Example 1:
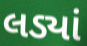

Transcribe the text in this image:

લડ્યાં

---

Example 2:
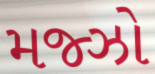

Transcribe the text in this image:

મજ્ઝો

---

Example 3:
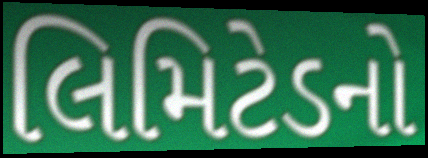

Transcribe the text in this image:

લિમિટેડનો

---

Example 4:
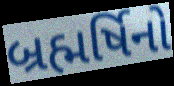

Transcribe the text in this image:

બ્રહ્મર્ષિનો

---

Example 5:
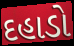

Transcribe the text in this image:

દહાડો